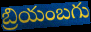
బ్రియంబగు